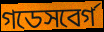
গডেসবের্গ